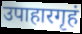
उपाहारगृहं